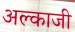
अल्काजी